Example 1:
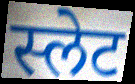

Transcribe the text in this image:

स्लेट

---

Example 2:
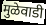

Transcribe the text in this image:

मुळेवाडी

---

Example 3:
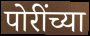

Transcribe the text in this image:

पोरींच्या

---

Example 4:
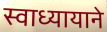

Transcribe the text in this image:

स्वाध्यायाने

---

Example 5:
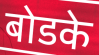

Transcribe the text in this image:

बोडके